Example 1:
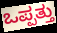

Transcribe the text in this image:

ಒಪ್ಪತ್ತು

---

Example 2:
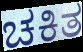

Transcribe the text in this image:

ಚಕಿತ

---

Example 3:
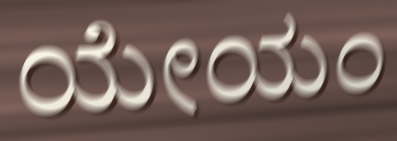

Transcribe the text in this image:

ಯೇಯಂ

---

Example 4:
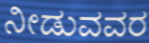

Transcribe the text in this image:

ನೀಡುವವರ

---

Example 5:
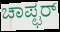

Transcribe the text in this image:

ಚಾಪ್ಟರ್